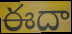
ఈదా